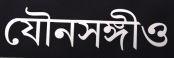
যৌনসঙ্গীও